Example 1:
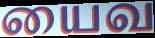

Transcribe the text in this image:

யைவ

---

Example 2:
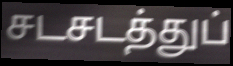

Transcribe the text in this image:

சடசடத்துப்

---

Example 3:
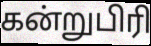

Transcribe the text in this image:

கன்றுபிரி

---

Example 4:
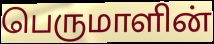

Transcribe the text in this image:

பெருமாளின்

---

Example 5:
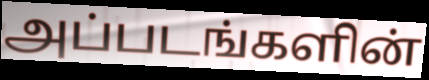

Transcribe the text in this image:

அப்படங்களின்